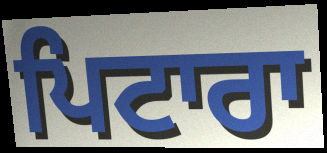
ਪਿਟਾਰਾ